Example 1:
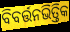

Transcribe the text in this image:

ବିବର୍ତ୍ତନଭିତ୍ତିକ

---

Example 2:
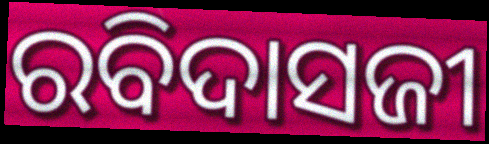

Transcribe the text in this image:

ରବିଦାସଜୀ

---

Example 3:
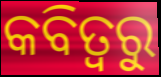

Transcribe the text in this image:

କବିତ୍ଵରୁ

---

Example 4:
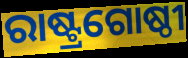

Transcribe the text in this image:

ରାଷ୍ଟ୍ରଗୋଷ୍ଠୀ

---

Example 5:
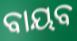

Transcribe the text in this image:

ବାୟବ